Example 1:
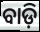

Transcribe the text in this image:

ବାଡ଼ି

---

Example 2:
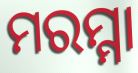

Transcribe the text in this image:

ମରମ୍ମା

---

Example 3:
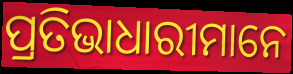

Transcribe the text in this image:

ପ୍ରତିଭାଧାରୀମାନେ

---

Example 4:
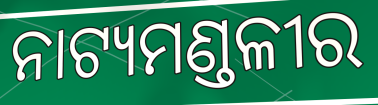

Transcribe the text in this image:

ନାଟ୍ୟମଣ୍ଡଳୀର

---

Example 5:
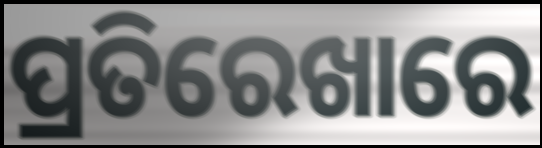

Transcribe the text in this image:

ପ୍ରତିରେଖାରେ